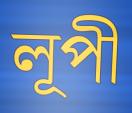
লূপী